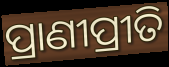
ପ୍ରାଣୀପ୍ରୀତି